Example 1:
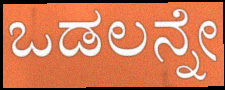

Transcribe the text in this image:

ಒಡಲನ್ನೇ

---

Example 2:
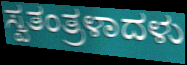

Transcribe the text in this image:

ಸ್ವತಂತ್ರಳಾದಳು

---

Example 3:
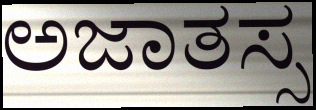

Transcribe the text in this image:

ಅಜಾತಸ್ಸ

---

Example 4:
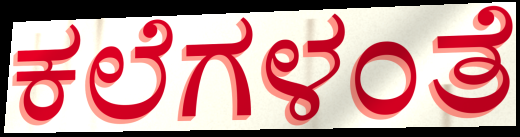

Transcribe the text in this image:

ಕಲೆಗಳಂತೆ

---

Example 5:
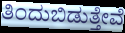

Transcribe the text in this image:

ತಿಂದುಬಿಡುತ್ತೇವೆ